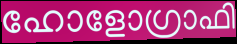
ഹോളോഗ്രാഫി